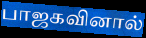
பாஜகவினால்